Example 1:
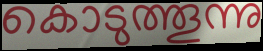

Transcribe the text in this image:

കൊടുത്തൂന്നു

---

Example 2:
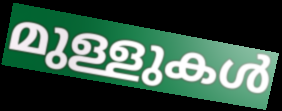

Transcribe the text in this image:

മുള്ളുകൾ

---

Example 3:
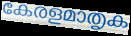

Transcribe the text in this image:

കേരളമാതൃക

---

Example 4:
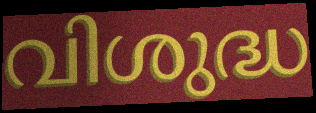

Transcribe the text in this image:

വിശുദ്ധ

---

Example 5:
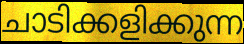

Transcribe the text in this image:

ചാടിക്കളിക്കുന്ന